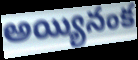
అయ్యినంక